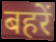
बहरें